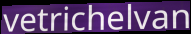
vetrichelvan